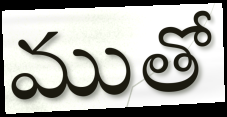
ముతో